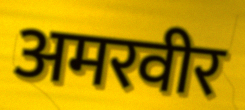
अमरवीर